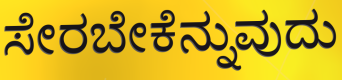
ಸೇರಬೇಕೆನ್ನುವುದು